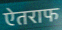
ऐतराफ